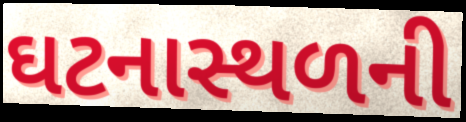
ઘટનાસ્થળની